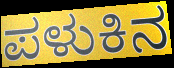
ಪಳುಕಿನ